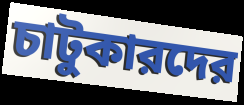
চাটুকারদের